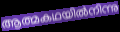
ആത്മകഥയിൽനിന്നു